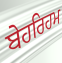
ਬੇਹਰਿਹਮ